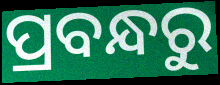
ପ୍ରବନ୍ଧରୁ